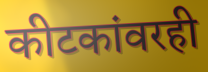
कीटकांवरही